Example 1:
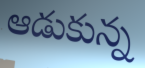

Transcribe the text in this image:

ఆడుకున్న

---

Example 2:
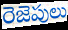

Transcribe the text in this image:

రెజెపులు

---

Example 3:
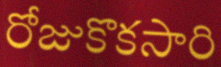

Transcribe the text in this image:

రోజుకొకసారి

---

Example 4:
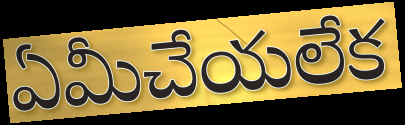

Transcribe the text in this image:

ఏమీచేయలేక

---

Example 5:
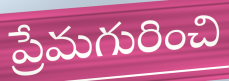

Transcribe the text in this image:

ప్రేమగురించి